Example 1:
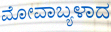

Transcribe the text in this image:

ಮೋವಾಬ್ಯಳಾದ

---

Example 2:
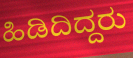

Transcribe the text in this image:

ಹಿಡಿದಿದ್ದರು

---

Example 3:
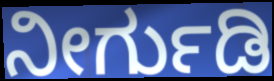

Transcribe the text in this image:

ನೀರ್ಗುಡಿ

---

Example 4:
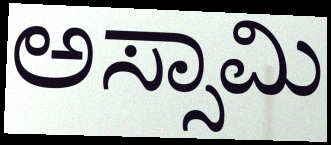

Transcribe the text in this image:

ಅಸ್ಸಾಮಿ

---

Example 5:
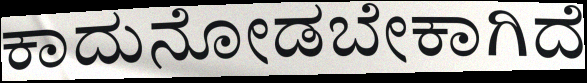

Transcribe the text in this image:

ಕಾದುನೋಡಬೇಕಾಗಿದೆ